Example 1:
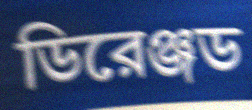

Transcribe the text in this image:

ডিরেঞ্জড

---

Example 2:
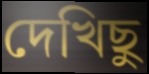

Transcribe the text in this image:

দেখিছু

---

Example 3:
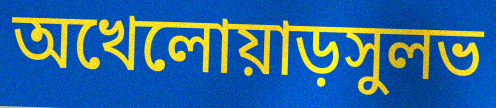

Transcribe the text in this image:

অখেলোয়াড়সুলভ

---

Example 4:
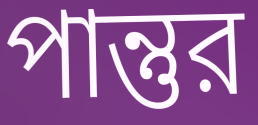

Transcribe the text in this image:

পান্তুর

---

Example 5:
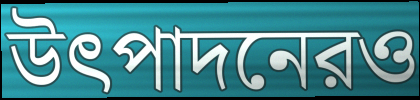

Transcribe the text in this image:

উৎপাদনেরও